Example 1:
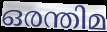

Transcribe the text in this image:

ഒരന്തിമ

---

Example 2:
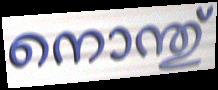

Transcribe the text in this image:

നൊന്തു്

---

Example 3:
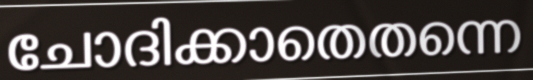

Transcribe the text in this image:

ചോദിക്കാതെതന്നെ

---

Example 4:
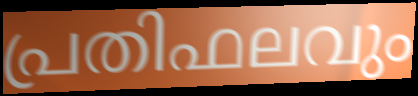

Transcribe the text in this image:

പ്രതിഫലവും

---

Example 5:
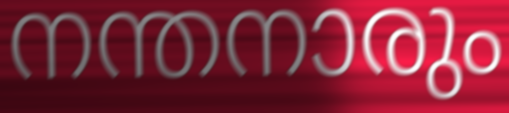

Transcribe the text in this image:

നന്തനാരും